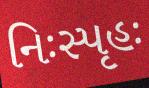
નિઃસ્પૃહઃ